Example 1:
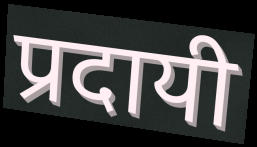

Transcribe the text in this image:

प्रदायी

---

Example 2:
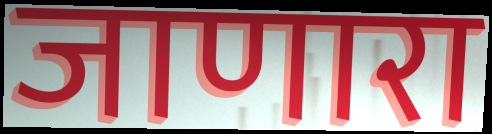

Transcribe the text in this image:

जाणारा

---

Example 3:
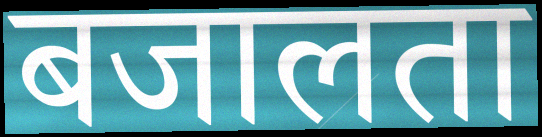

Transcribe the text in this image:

बजालता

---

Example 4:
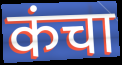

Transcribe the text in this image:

कंचा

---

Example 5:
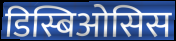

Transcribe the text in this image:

डिस्बिओसिस